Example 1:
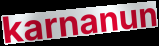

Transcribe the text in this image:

karnanun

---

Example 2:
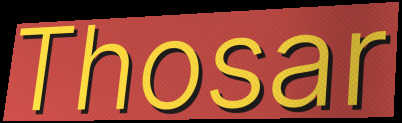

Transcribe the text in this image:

Thosar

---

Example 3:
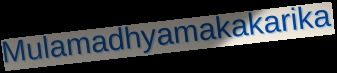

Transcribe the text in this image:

Mulamadhyamakakarika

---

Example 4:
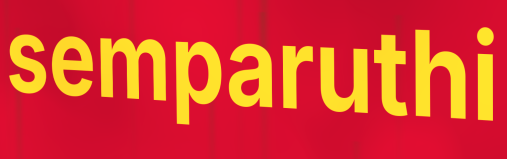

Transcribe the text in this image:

semparuthi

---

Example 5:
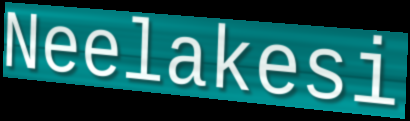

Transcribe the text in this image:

Neelakesi